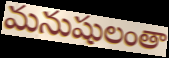
మనుషులంతా